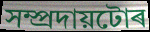
সম্প্ৰদায়টোৰ